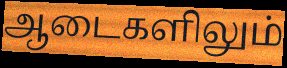
ஆடைகளிலும்